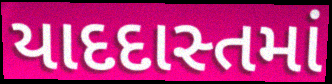
યાદદાસ્તમાં